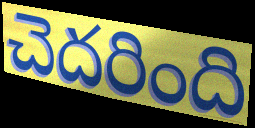
చెదరింది